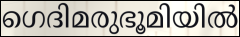
ഗെദിമരുഭൂമിയിൽ